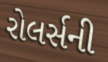
રોલર્સની